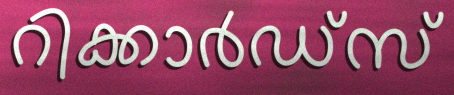
റിക്കാർഡ്സ്